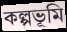
কল্পভূমি